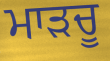
ਮਾੜਚੂ